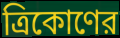
ত্রিকোণের